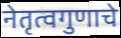
नेतृत्वगुणाचे